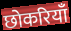
छोकरियाँ